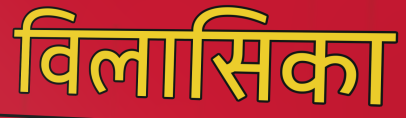
विलासिका